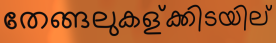
തേങ്ങലുകള്ക്കിടയില്